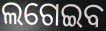
ଲଗେଇବ